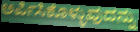
ಅರ್ಪಿಸಿಕೊಳ್ಳುವುದನ್ನು